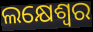
ଲକ୍ଷେଶ୍ଵର